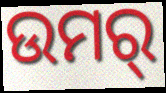
ଉମର୍